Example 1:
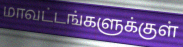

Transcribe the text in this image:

மாவட்டங்களுக்குள்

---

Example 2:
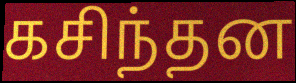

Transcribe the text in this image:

கசிந்தன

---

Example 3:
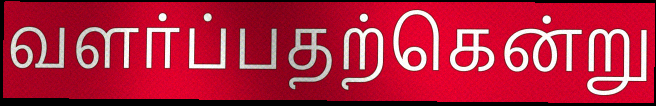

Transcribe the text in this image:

வளர்ப்பதற்கென்று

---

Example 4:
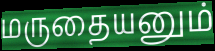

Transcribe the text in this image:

மருதையனும்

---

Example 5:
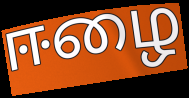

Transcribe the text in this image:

ஈழை